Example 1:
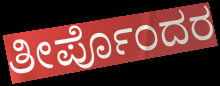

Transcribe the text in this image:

ತೀರ್ಪೊಂದರ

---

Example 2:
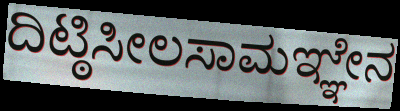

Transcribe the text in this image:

ದಿಟ್ಠಿಸೀಲಸಾಮಞ್ಞೇನ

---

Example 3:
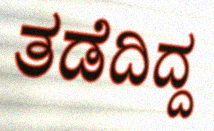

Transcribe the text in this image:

ತಡೆದಿದ್ದ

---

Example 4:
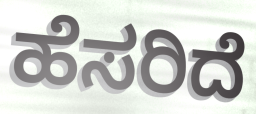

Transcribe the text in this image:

ಹೆಸರಿದೆ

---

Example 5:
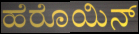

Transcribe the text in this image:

ಹೆರೊಯಿನ್